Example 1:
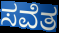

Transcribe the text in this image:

ಸವೆತ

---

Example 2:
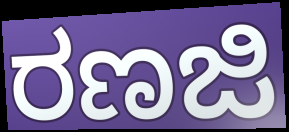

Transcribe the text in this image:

ರಣಜಿ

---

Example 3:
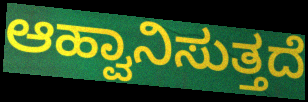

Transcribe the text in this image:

ಆಹ್ವಾನಿಸುತ್ತದೆ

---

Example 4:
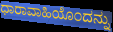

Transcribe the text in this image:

ಧಾರಾವಾಹಿಯೊಂದನ್ನು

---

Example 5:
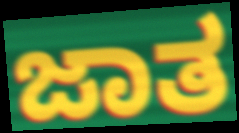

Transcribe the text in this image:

ಜಾತ